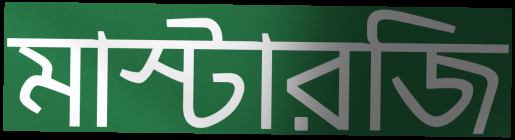
মাস্টারজি